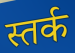
स्तर्क